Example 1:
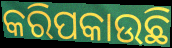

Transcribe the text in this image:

କରିପକାଉଛି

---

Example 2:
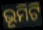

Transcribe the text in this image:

ଭୂମିଟି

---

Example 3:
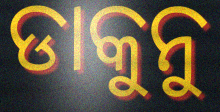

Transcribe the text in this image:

ଡାକୁନୁ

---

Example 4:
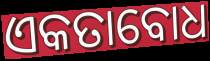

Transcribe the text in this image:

ଏକତାବୋଧ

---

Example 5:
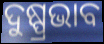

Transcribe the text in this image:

ଦୁଷ୍ପ୍ରଭାବ